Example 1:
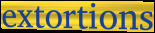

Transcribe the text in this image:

extortions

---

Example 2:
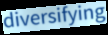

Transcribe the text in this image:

diversifying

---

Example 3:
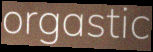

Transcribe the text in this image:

orgastic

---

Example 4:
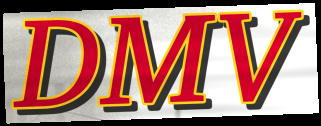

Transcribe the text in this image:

DMV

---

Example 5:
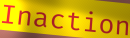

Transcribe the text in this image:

Inaction